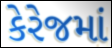
કેરેજમાં